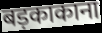
बड़काकाना